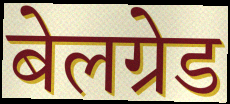
बेलग्रेड